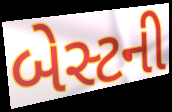
બેસ્ટની